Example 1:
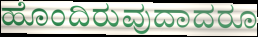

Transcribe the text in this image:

ಹೊಂದಿರುವುದಾದರೂ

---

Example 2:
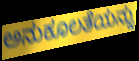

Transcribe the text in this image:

ಅನುಕೂಲತೆಯನ್ನು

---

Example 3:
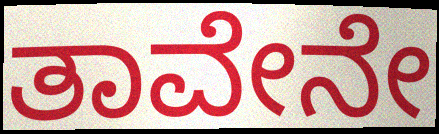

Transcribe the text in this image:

ತಾವೇನೇ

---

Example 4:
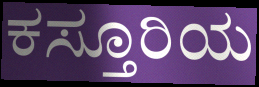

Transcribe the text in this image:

ಕಸ್ತೂರಿಯ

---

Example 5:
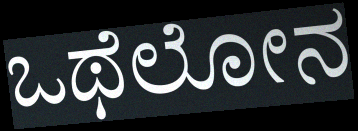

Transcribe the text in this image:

ಒಥೆಲೋನ